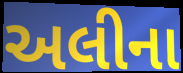
અલીના